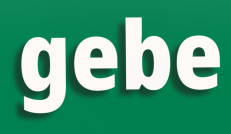
gebe